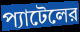
প্যাটেলের